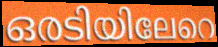
ഒരടിയിലേറെ